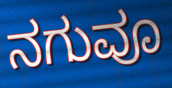
ನಗುವೂ